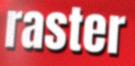
raster